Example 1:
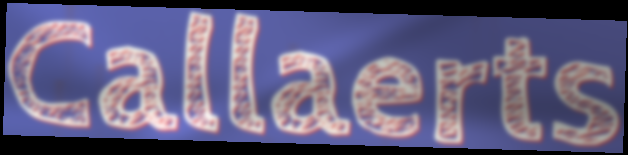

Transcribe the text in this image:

Callaerts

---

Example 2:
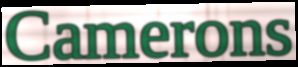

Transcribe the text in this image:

Camerons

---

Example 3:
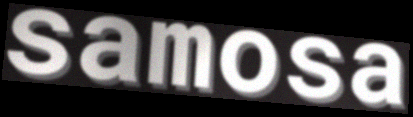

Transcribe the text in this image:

samosa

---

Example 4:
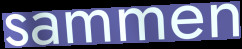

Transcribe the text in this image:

sammen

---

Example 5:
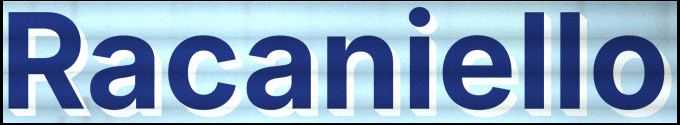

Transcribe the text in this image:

Racaniello